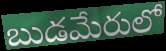
బుడమేరులో